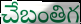
చేబంతిగ